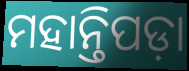
ମହାନ୍ତିପଡ଼ା